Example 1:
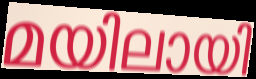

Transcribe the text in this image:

മയിലായി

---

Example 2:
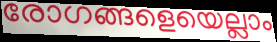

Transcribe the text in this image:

രോഗങ്ങളെയെല്ലാം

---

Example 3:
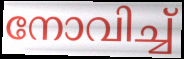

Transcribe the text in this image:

നോവിച്ച്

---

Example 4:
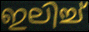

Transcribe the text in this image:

ഇലിച്ച്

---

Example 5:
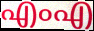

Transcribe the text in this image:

എംഎ